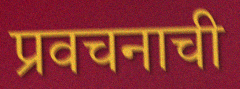
प्रवचनाची